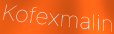
Kofexmalin